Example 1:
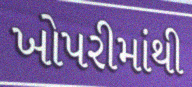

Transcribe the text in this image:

ખોપરીમાંથી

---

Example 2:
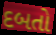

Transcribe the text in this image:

દબતો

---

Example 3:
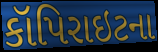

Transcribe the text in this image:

કૉપિરાઇટના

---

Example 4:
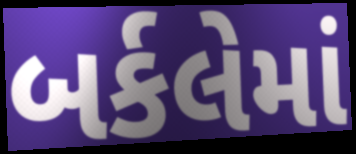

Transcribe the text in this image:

બર્કલેમાં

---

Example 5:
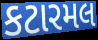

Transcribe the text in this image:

કટારમલ